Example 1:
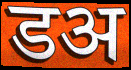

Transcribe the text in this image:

डअ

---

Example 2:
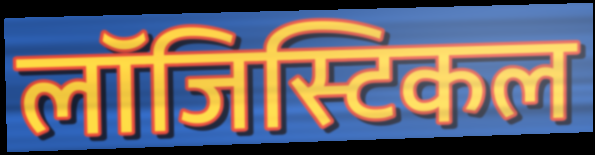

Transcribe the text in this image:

लॉजिस्टिकल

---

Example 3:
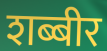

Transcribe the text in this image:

शब्बीर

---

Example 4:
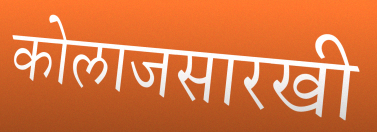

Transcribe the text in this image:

कोलाजसारखी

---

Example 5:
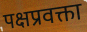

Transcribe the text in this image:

पक्षप्रवक्ता